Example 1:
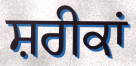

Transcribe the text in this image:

ਸ਼ਰੀਕਾਂ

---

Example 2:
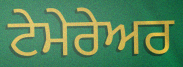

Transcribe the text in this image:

ਟੇਮੇਰੇਅਰ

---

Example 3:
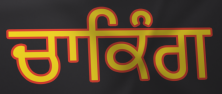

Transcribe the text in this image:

ਚਾਕਿੰਗ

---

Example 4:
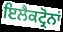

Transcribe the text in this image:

ਇਲੈਕਟ੍ਰੋਨਾਂ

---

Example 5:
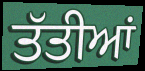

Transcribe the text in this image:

ਤੱਤੀਆਂ